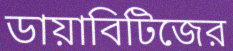
ডায়াবিটিজের